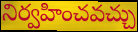
నిర్వహించవచ్చు